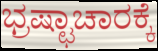
ಭ್ರಷ್ಟಾಚಾರಕ್ಕೆ